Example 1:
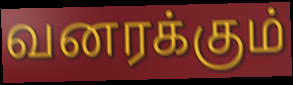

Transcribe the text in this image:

வனரக்கும்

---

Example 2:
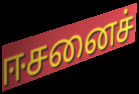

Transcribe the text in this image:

ஈசனைச்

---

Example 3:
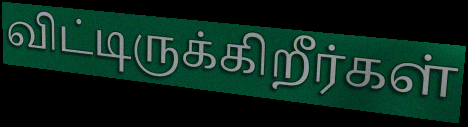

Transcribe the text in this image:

விட்டிருக்கிறீர்கள்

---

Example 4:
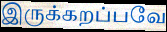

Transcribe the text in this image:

இருக்கறப்பவே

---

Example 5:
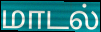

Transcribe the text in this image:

மாடல்